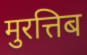
मुरत्तिब